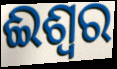
ଈଶ୍ୱର